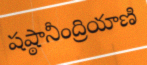
షష్ఠానీంద్రియాణి